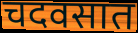
चदवसात